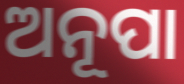
ଅନୂପା